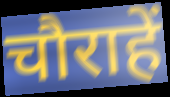
चौराहें